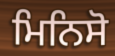
ਮਿਨਿਸੋ